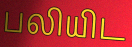
பலியிட